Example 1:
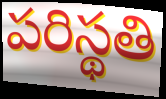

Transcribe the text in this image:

పరిస్థతి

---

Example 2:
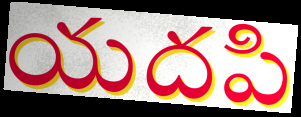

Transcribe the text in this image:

యదపి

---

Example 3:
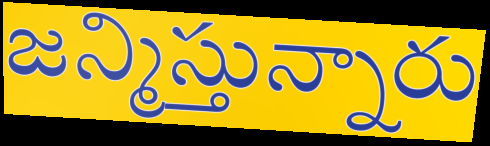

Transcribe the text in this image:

జన్మిస్తున్నారు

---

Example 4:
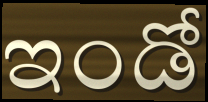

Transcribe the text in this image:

ఇండో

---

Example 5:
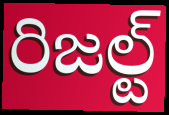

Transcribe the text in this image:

రిజల్ట్